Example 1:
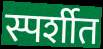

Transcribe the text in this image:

स्पर्शीत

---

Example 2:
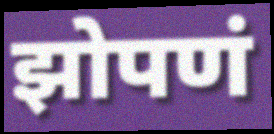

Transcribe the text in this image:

झोपणं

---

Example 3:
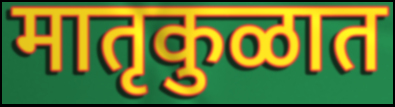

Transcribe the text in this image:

मातृकुळात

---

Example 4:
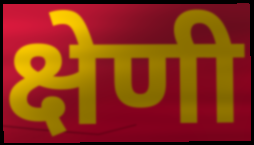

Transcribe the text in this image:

क्षेणी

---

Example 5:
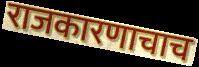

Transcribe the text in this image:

राजकारणाचाच